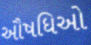
ઔષધિઓ